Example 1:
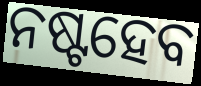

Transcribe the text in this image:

ନଷ୍ଟହେବ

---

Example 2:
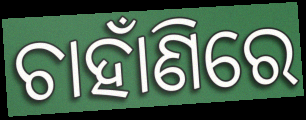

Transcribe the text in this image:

ଚାହାଁଣିରେ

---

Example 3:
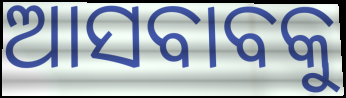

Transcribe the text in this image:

ଆସବାବକୁ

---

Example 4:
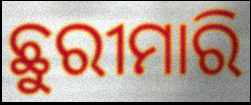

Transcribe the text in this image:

ଛୁରୀମାରି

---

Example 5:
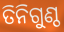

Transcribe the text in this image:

ତିନିଗୁଣ୍ଠ